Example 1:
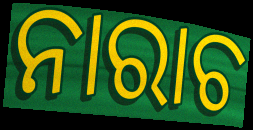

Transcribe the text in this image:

ନାରାଚ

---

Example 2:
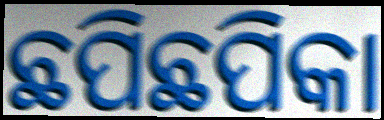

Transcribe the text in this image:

ଛପିଛପିକା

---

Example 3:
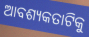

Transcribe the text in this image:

ଆବଶ୍ୟକତାଟିକୁ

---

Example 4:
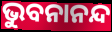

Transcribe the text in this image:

ଭୁବନାନନ୍ଦ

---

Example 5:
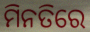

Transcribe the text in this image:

ମିନତିରେ